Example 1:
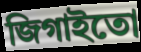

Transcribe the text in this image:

জিগাইতো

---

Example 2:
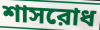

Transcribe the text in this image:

শাসরোধ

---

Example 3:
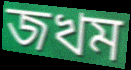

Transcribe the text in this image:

জখম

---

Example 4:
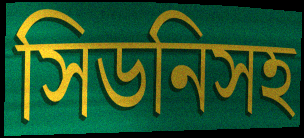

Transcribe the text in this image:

সিডনিসহ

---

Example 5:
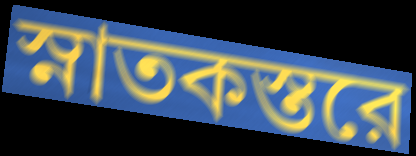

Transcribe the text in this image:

স্নাতকস্তরে